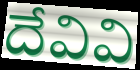
దేవివి